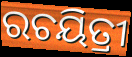
ରଚୟିତ୍ରୀ